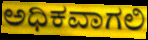
ಅಧಿಕವಾಗಲಿ